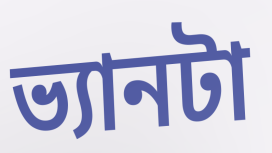
ভ্যানটা